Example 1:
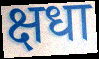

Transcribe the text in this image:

क्षधा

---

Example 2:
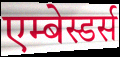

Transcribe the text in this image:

एम्बेस्डर्स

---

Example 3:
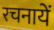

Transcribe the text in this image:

रचनायें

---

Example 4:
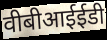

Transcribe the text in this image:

वीबीआईईडी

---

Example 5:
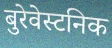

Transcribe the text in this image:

बुरेवेस्टनिक